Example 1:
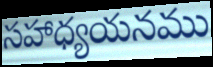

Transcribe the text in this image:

సహాధ్యయనము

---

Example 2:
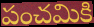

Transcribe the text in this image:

పంచమికి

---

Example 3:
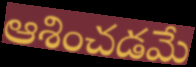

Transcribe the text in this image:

ఆశించడమే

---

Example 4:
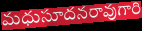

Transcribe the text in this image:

మధుసూదనరావుగారి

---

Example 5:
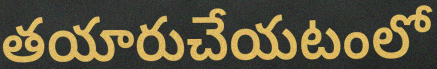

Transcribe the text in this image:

తయారుచేయటంలో